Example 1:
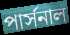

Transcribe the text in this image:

পার্সনাল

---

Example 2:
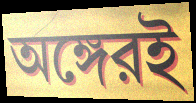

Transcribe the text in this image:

অঙ্গেরই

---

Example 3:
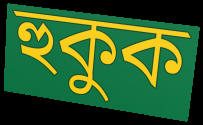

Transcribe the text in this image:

হুকুক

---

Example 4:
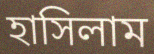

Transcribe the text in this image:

হাসিলাম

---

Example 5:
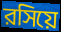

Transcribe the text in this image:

রসিয়ে